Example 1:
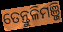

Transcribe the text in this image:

ତେନ୍ତୁଳିମଞ୍ଜି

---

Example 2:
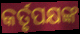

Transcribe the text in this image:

କର୍ତୃପକ୍ଷଙ୍କ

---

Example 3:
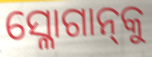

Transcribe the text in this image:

ସ୍ଳୋଗାନ୍‌କୁ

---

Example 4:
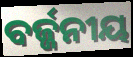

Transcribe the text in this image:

ବର୍ଜ୍ଜନୀୟ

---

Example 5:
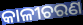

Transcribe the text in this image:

କାଳୀଚରଣ